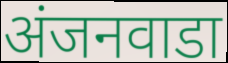
अंजनवाडा